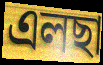
এলছা